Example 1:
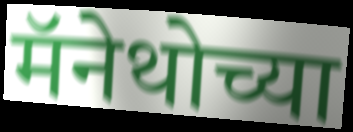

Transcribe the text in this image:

मॅनेथोच्या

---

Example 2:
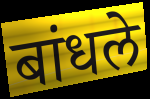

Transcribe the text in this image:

बांधले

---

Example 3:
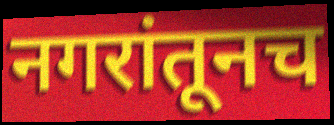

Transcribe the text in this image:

नगरांतूनच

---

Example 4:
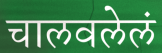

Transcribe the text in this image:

चालवलेलं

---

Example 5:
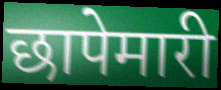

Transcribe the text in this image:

छापेमारी